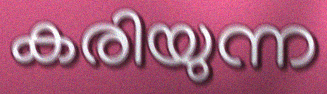
കരിയുന്ന